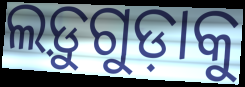
ଲଡ଼ୁଗୁଡ଼ାକୁ